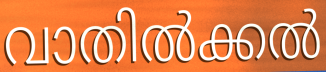
വാതിൽക്കൽ